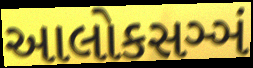
આલોકસઞ્ઞં